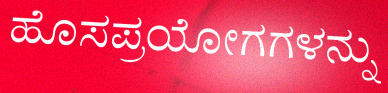
ಹೊಸಪ್ರಯೋಗಗಳನ್ನು